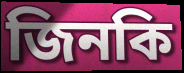
জিনকি